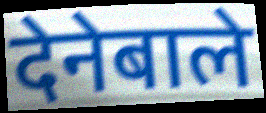
देनेबाले